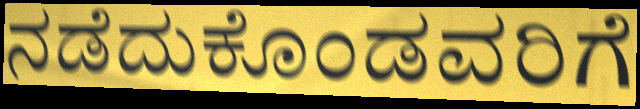
ನಡೆದುಕೊಂಡವರಿಗೆ